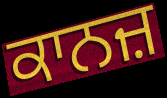
ਕਾਨਜ਼